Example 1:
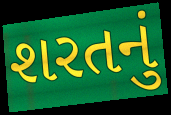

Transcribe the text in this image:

શરતનું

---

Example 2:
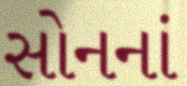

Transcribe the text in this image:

સોનનાં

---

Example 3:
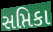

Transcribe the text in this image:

સપ્તિકા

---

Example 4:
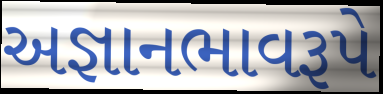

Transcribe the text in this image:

અજ્ઞાનભાવરૂપે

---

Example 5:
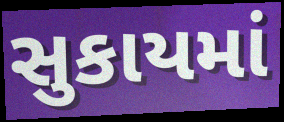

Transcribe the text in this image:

સુકાયમાં